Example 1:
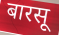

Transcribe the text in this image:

बारसू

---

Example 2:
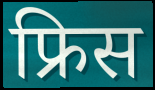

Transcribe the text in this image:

फ्रिस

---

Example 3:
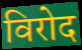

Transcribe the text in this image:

विरोद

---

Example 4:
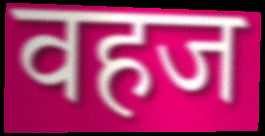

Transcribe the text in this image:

वहज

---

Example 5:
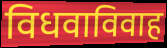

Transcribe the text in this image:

विधवाविवाह